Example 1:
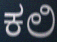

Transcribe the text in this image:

ಕಲಿ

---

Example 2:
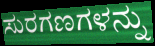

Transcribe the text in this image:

ಸುರಗಣಗಳನ್ನು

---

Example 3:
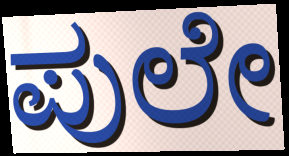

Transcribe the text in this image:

ಪುಲೇ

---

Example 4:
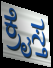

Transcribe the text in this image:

ಕ್ರೈಸ್ತ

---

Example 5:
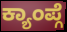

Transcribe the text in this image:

ಕ್ಯಾಂಪ್ಗೆ